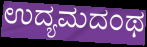
ಉದ್ಯಮದಂಥ